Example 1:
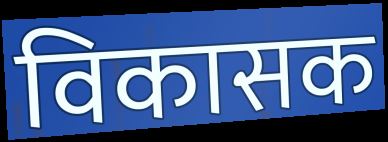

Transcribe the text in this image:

विकासक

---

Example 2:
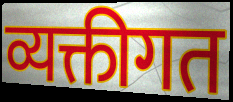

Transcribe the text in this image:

व्यक्तीगत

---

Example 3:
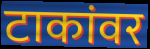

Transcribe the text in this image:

टाकांवर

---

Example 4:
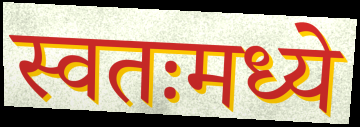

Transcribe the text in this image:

स्वतःमध्ये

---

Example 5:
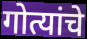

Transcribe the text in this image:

गोत्यांचे